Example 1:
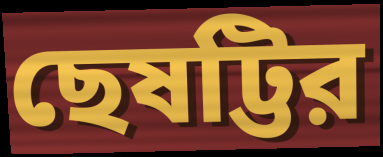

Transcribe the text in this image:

ছেষট্টির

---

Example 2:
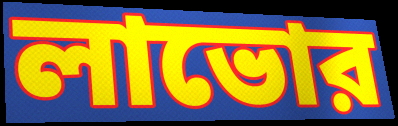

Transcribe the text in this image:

লাভোর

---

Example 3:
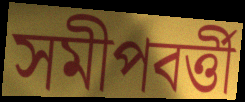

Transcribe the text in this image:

সমীপবর্ত্তী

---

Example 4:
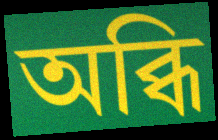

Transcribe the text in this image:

অব্ধি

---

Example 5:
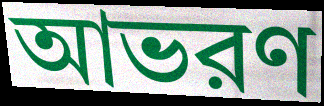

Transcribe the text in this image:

আভরণ